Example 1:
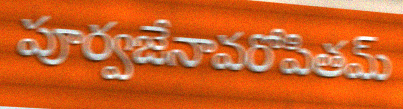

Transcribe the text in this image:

పూర్వజేనావరోపితమ్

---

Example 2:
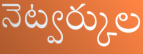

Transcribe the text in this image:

నెట్వర్కుల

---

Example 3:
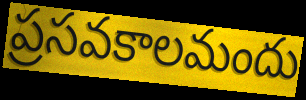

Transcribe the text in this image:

ప్రసవకాలమందు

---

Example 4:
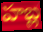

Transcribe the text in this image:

హబ్ల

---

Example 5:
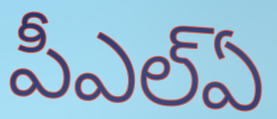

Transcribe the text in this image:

పీఎల్ఏ